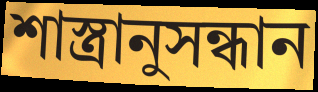
শাস্ত্রানুসন্ধান